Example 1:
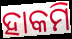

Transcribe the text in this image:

ହାକମି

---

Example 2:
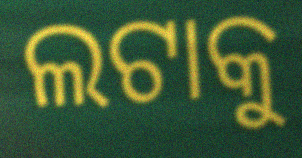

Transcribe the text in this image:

ଲଟାକୁ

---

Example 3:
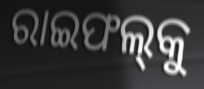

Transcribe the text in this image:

ରାଇଫଲ୍‍କୁ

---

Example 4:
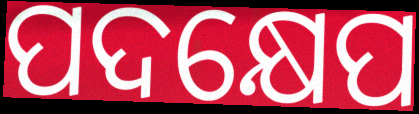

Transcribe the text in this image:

ପଦକ୍ଷେପ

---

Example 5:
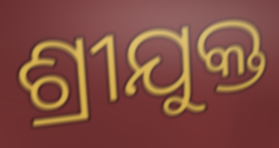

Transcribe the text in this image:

ଶ୍ରୀଯୁକ୍ତ